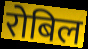
रोबिल